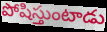
పోషిస్తుంటాడు